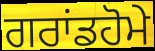
ਗਰਾਂਡਹੋਮੇ